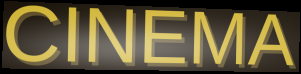
CINEMA